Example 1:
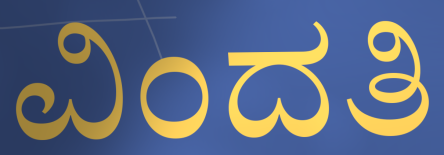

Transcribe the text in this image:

ವಿಂದತಿ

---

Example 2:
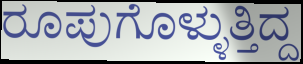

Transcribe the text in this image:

ರೂಪುಗೊಳ್ಳುತ್ತಿದ್ದ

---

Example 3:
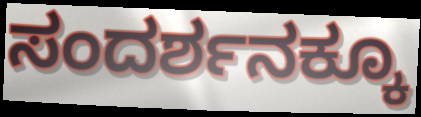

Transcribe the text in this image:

ಸಂದರ್ಶನಕ್ಕೂ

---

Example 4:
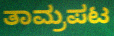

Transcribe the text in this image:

ತಾಮ್ರಪಟ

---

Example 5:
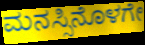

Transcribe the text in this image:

ಮನಸ್ಸಿನೊಳಗೇ